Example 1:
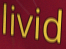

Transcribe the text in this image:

livid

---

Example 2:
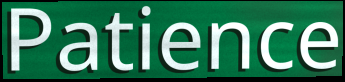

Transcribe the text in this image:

Patience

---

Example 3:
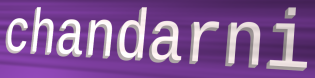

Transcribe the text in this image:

chandarni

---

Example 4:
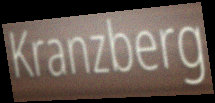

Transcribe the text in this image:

Kranzberg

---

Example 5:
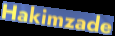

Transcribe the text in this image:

Hakimzade